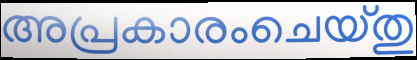
അപ്രകാരംചെയ്തു